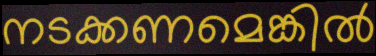
നടക്കണമെങ്കിൽ